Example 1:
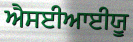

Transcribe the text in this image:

ਐਸਈਆਈਯੂ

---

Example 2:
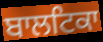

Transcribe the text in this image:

ਬਾਲਟਿਕਾ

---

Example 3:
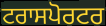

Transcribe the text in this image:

ਟਰਾਸਪੋਰਟਰ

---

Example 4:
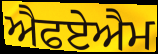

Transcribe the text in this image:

ਐਫਏਐਮ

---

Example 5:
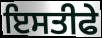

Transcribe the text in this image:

ਇਸਤੀਫੇ